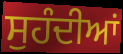
ਸੁਹੰਦੀਆਂ